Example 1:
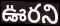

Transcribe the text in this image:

ఊరని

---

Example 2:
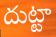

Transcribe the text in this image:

దుట్టా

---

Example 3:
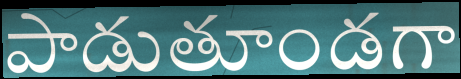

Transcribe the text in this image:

పాడుతూండగా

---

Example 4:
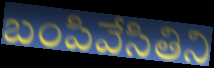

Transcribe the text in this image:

బంపివేసితిని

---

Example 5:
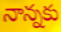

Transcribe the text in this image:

నాన్నకు